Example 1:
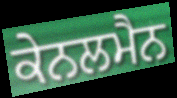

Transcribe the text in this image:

ਕੇਨਲਮੈਨ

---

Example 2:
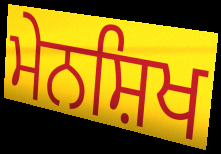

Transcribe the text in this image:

ਮੇਨਸ਼ਿਖ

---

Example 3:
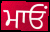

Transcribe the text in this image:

ਮਾਓਂ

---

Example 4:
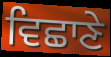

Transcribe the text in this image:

ਵਿਛਾਣੇ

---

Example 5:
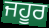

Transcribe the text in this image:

ਜਹੂਰ